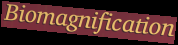
Biomagnification